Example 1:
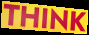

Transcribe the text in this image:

THINK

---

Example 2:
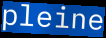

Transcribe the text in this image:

pleine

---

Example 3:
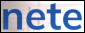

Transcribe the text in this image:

nete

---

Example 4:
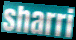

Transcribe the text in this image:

sharri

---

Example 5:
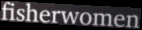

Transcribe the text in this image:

fisherwomen